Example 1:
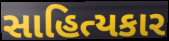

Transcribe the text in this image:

સાહિત્યકાર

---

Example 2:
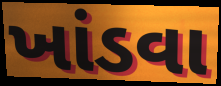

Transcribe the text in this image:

ખાંડવા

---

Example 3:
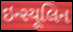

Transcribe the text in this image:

ઇન્સ્યૂલિન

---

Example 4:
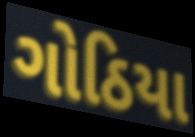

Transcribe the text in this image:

ગોઠિયા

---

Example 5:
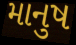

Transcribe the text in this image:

માનુષ